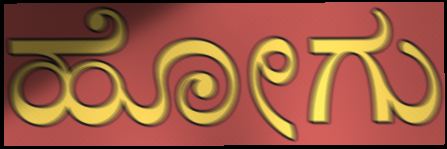
ಹೋಗು